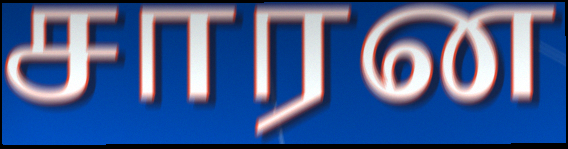
சாரன